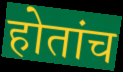
होतांच